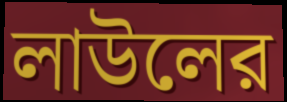
লাউলের